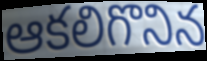
ఆకలిగొనిన